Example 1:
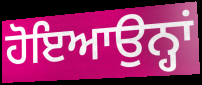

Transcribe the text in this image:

ਹੋਇਆਉਨ੍ਹਾਂ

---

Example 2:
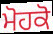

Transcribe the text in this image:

ਮੋਹਕੋ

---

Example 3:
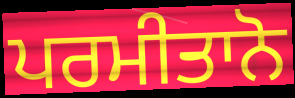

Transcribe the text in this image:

ਪਰਮੀਤਾਨੋ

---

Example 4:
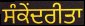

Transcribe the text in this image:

ਸੰਕੇਂਦਰੀਤਾ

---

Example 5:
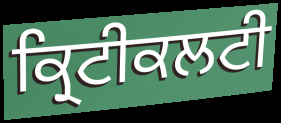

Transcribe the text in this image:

ਕ੍ਰਿਟੀਕਲਟੀ